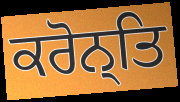
ਕਰੋਨ੍ਤਿ